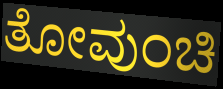
ತೋವುಂಚಿ